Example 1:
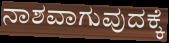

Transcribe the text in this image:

ನಾಶವಾಗುವುದಕ್ಕೆ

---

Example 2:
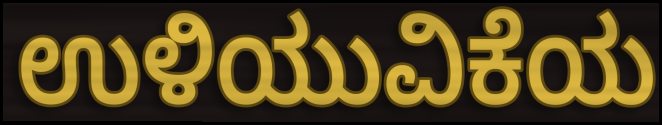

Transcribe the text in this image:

ಉಳಿಯುವಿಕೆಯ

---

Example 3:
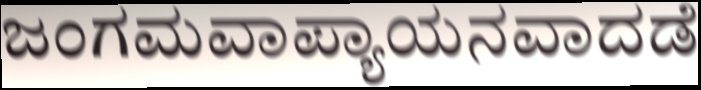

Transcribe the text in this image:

ಜಂಗಮವಾಪ್ಯಾಯನವಾದಡೆ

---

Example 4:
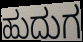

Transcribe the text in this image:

ಹುದುಗ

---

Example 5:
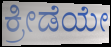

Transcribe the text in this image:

ಕ್ರೀಡೆಯೇ